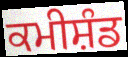
ਕਮੀਸ਼ੰਡ